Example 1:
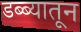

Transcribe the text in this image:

डब्ब्यातून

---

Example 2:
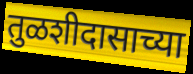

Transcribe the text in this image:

तुळशीदासाच्या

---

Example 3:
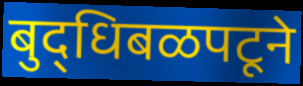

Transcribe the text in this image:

बुद्धिबळपटूने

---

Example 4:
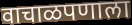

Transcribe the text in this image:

वाचाळपणाला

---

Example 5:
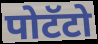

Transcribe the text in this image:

पोटॅटो